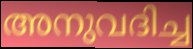
അനുവദിച്ച